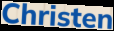
Christen